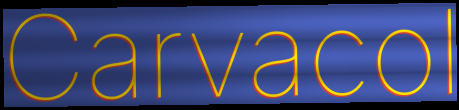
Carvacol